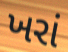
ખરાં